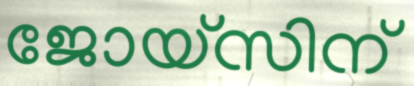
ജോയ്സിന്